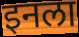
इनला